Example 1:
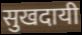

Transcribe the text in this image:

सुखदायी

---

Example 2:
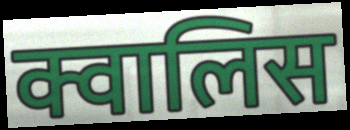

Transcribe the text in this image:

क्वालिस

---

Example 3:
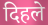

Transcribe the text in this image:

दिहले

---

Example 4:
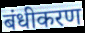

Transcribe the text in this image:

बंधीकरण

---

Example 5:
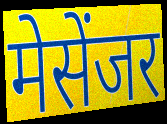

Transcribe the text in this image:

मेसेंजर